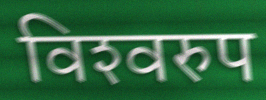
विश्वरुप